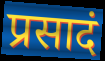
प्रसादं